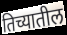
तिच्यातील